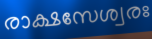
രാക്ഷസേശ്വരഃ